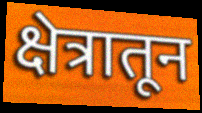
क्षेत्रातून